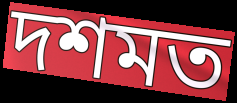
দশমত